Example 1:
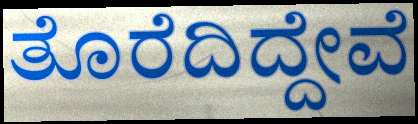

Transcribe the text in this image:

ತೊರೆದಿದ್ದೇವೆ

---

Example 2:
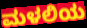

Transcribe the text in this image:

ಮಳಲಿಯ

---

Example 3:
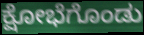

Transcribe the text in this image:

ಕ್ಷೋಭೆಗೊಂಡು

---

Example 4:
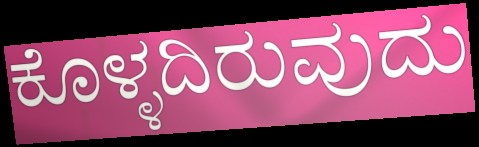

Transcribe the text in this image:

ಕೊಳ್ಳದಿರುವುದು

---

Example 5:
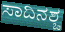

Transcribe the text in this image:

ಸಾದಿನಶ್ಚ